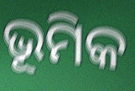
ଭୂମିକ